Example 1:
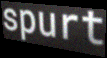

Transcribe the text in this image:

spurt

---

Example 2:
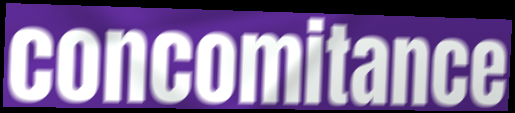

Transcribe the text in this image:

concomitance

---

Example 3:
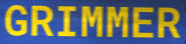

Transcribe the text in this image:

GRIMMER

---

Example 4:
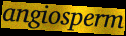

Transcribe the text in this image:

angiosperm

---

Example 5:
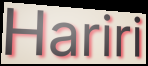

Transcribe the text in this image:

Hariri